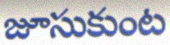
జూసుకుంట